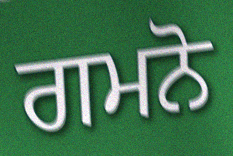
ਗਮਨੋ